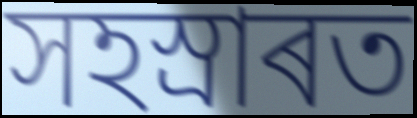
সহস্ৰাৰত